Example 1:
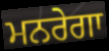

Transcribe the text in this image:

ਮਨਰੇਗਾ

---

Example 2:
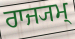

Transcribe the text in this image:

ਰਾਜ੍ਯਮ੍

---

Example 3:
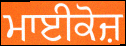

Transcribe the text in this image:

ਮਾਈਕੋਜ਼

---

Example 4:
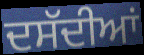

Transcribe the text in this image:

ਦਸੱਦੀਆਂ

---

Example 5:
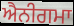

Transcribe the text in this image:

ਐਨੀਗਮਾ